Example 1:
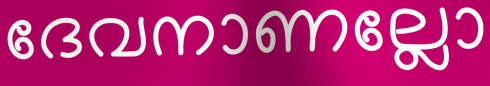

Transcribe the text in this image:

ദേവനാണല്ലോ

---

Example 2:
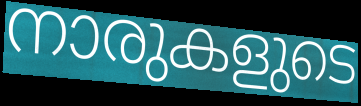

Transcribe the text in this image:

നാരുകളുടെ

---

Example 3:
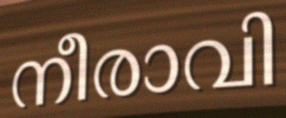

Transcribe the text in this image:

നീരാവി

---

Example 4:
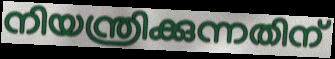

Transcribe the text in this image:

നിയന്ത്രിക്കുന്നതിന്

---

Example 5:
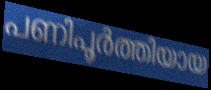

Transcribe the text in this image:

പണിപൂർത്തിയായ